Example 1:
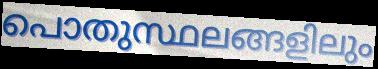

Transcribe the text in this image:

പൊതുസ്ഥലങ്ങളിലും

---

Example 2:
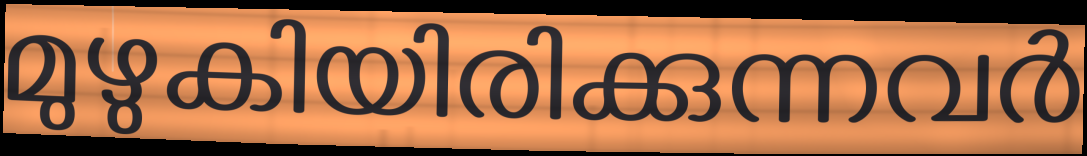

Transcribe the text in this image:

മുഴുകിയിരിക്കുന്നവർ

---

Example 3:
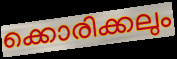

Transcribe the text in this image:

ക്കൊരിക്കലും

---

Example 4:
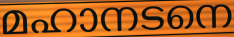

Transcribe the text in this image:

മഹാനടനെ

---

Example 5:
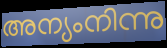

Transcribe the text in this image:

അന്യംനിന്നു